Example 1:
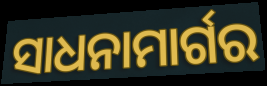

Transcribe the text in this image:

ସାଧନାମାର୍ଗର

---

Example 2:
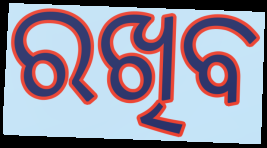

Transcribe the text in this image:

ରଖିବ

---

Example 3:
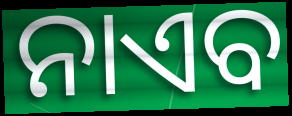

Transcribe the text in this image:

ନାଏବ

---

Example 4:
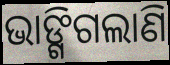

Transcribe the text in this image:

ଭାଙ୍ଗିଗଲାଣି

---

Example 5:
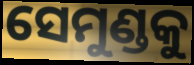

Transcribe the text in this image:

ସେମୁଣ୍ଡକୁ